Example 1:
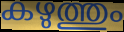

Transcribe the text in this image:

കഴുത്തും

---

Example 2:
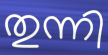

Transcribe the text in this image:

തുന്നി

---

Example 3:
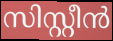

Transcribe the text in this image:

സിസ്റ്റീൻ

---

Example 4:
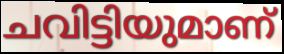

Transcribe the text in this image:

ചവിട്ടിയുമാണ്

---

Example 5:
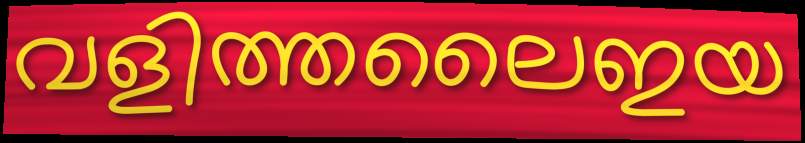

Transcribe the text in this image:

വളിത്തലൈഇയ